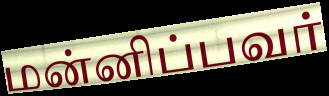
மன்னிப்பவர்